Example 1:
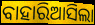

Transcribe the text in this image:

ବାହାରିଆସିଲା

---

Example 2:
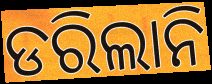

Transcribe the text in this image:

ଡରିଲାନି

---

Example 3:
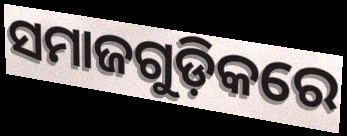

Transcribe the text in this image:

ସମାଜଗୁଡ଼ିକରେ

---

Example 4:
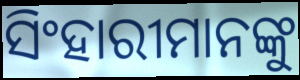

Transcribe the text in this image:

ସିଂହାରୀମାନଙ୍କୁ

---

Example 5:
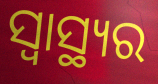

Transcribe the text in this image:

ସ୍ବାସ୍ଥ୍ୟର